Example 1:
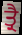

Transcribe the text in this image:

ਤ੍ਰ੍ਰੈ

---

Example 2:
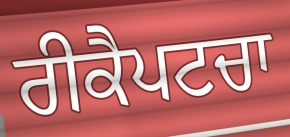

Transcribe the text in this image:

ਰੀਕੈਪਟਚਾ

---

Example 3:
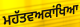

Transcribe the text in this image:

ਮਹੱਤਵਅਕਾਂਖਿਆ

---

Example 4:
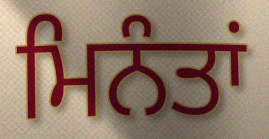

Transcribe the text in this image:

ਮਿਨੰਤਾਂ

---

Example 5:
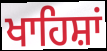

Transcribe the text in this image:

ਖਾਹਿਸ਼ਾਂ